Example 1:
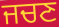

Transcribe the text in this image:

ਜਚਣ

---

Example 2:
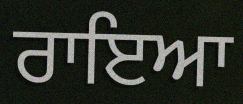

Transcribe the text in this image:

ਰਾਇਆ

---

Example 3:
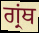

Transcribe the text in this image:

ਗ੍ਰਂਥ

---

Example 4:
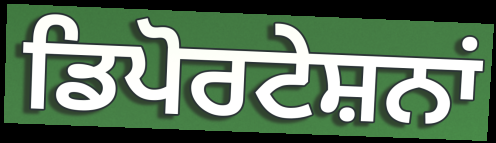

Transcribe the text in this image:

ਡਿਪੋਰਟੇਸ਼ਨਾਂ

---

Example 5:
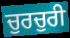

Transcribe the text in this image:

ਚੁਰਚੁਰੀ